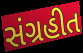
સંગ્રહીત